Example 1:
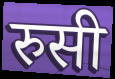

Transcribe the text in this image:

रुसी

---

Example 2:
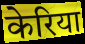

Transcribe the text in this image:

केरिया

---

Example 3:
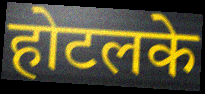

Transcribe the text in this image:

होटलके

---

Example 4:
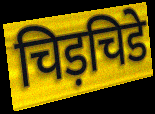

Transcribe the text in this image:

चिड़चिडे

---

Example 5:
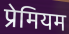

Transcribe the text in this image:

प्रेमियम